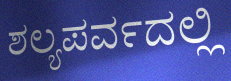
ಶಲ್ಯಪರ್ವದಲ್ಲಿ